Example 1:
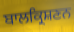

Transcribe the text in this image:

ਬਾਲਕ੍ਰਿਸ਼ਣਨ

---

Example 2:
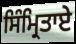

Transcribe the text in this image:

ਸਿੰਮ੍ਰਿਤਾਏ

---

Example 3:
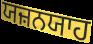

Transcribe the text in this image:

ਯਜ਼ਨਯਾਹ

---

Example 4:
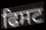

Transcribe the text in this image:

ਫਿਸਟ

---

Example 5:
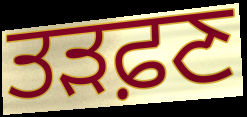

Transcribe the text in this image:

ਤੜਫ਼ਣ